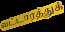
வட்டாரத்துக்